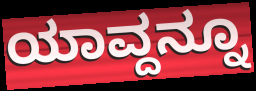
ಯಾವ್ದನ್ನೂ